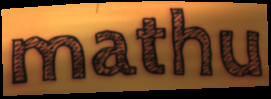
mathu